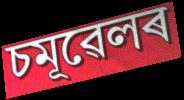
চমূৱেলৰ